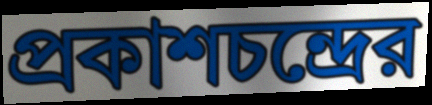
প্রকাশচন্দ্রের